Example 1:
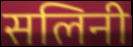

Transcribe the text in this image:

सलिनी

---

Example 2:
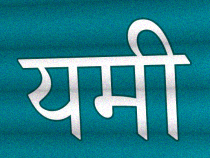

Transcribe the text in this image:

यमी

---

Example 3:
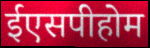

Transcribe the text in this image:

ईएसपीहोम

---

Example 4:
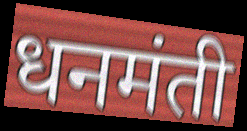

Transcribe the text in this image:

धनमंती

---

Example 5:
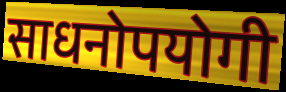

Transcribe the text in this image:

साधनोपयोगी